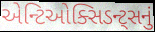
એન્ટિઓક્સિડન્ટ્સનું